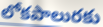
లోకపాలురకు